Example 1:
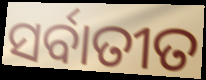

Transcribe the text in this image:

ସର୍ବାତୀତ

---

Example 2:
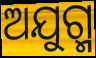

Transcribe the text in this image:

ଅଯୁଗ୍ମ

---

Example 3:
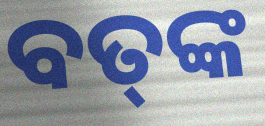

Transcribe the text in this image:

ବତ୍‍ଙ୍କ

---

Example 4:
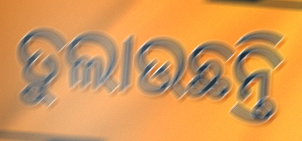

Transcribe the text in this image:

ତୁଲାଉଛନ୍ତି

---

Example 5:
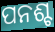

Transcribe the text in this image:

ପନଶ୍ଚ